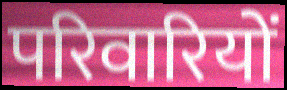
परिवारियों